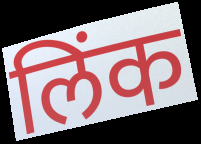
लिंक